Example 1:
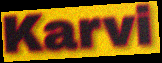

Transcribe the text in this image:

Karvi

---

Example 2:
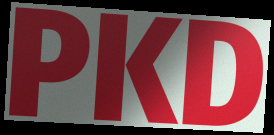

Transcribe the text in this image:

PKD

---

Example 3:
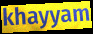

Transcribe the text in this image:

khayyam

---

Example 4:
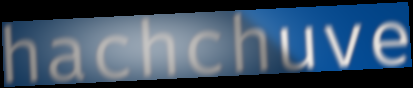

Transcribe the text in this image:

hachchuve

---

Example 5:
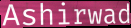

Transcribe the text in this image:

Ashirwad